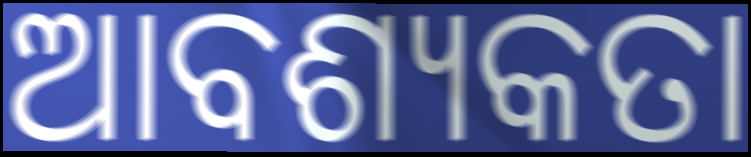
ଆବଶ୍ୟକତା